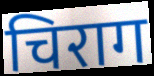
चिराग